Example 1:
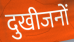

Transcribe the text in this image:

दुखीजनों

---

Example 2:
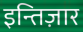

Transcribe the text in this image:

इन्तिज़ार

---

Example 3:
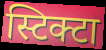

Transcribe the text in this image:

स्टिक्टा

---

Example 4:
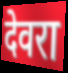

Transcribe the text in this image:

देवरा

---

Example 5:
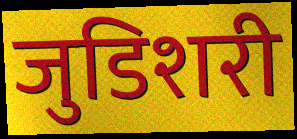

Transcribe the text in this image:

जुडिशरी